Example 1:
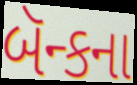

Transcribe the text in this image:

બૅન્કના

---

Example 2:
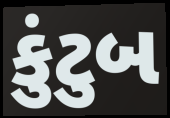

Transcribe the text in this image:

કુંટુબ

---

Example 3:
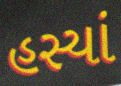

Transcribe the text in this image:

હસ્યાં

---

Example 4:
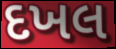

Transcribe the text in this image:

દખલ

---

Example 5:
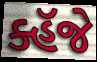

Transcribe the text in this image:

ક્હૅજે